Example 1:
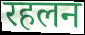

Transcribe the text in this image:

रहलन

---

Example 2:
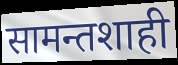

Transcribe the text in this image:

सामन्तशाही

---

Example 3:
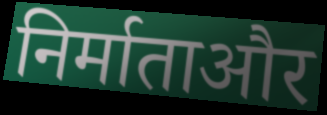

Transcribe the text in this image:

निर्माताऔर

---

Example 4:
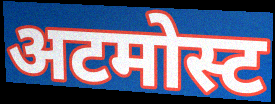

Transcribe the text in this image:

अटमोस्ट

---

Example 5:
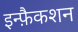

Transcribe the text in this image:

इन्फ़ैकशन